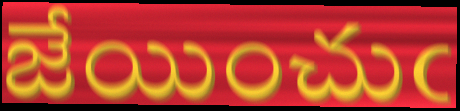
జేయించుఁ